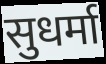
सुधर्मा